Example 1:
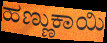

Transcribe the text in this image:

ಹಣ್ಣುಕಾಯಿ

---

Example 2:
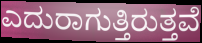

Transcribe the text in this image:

ಎದುರಾಗುತ್ತಿರುತ್ತವೆ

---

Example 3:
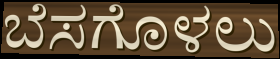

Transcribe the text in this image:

ಬೆಸಗೊಳಲು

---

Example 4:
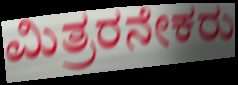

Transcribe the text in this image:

ಮಿತ್ರರನೇಕರು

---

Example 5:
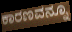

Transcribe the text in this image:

ಕಾರಣವನ್ನೂ